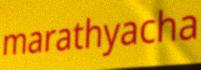
marathyacha